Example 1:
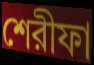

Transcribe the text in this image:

শেরীফা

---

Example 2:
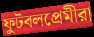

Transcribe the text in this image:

ফুটবলপ্রেমীরা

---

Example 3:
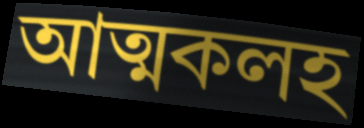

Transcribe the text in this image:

আত্মকলহ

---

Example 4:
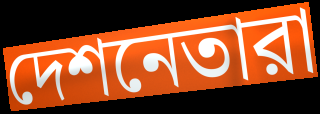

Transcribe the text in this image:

দেশনেতারা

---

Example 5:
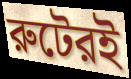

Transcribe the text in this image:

রুটেরই